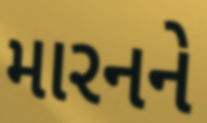
મારનને